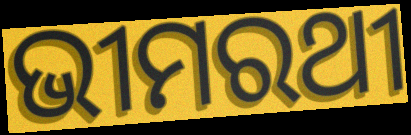
ଭୀମରଥୀ